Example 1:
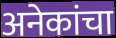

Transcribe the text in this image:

अनेकांचा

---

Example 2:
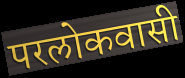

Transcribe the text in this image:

परलोकवासी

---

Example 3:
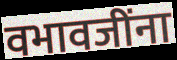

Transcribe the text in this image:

वभावजींना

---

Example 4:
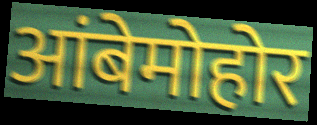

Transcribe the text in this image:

आंबेमोहोर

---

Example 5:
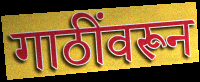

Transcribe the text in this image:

गाठींवरून